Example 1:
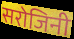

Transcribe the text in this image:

सरोजिनी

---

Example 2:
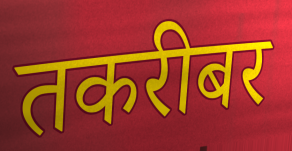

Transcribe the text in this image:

तकरीबर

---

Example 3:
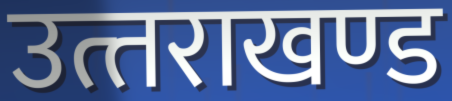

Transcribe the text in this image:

उत्‍तराखण्‍ड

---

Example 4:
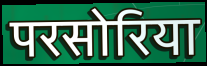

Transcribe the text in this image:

परसोरिया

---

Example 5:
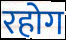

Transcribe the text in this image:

रहोग